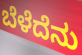
ಬೆಳೆದೆನು